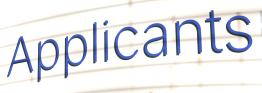
Applicants